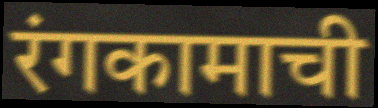
रंगकामाची